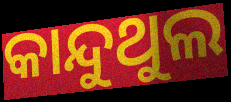
କାନ୍ଦୁଥୁଲ